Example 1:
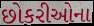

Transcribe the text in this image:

છોકરીઓના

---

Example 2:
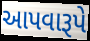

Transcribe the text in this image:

આપવારૂપે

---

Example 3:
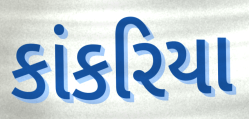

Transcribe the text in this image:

કાંકરિયા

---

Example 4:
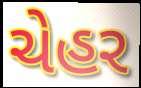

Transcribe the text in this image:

ચેહર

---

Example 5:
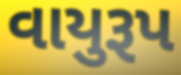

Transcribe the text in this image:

વાયુરૂપ